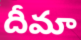
దీమా